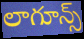
లాగూన్స్